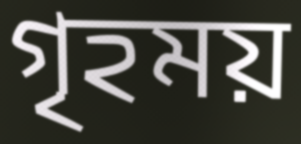
গৃহময়